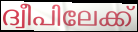
ദ്വീപിലേക്ക്